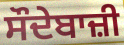
ਸੌਦੇਬਾਜ਼ੀ